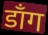
डाँग